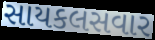
સાયકલસવાર